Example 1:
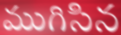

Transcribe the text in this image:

ముగిసిన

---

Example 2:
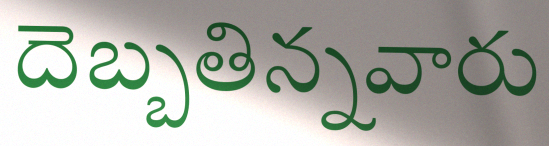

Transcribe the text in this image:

దెబ్బతిన్నవారు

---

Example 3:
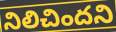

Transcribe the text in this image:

నిలిచిందని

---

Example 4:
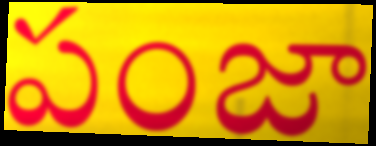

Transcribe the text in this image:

పంజా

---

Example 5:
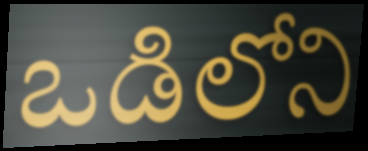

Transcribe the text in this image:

ఒడిలోని